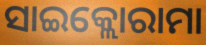
ସାଇକ୍ଲୋରାମା